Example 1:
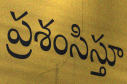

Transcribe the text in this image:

ప్రశంసిస్తూ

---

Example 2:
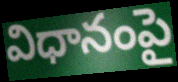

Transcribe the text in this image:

విధానంపై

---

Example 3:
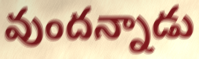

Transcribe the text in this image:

వుందన్నాడు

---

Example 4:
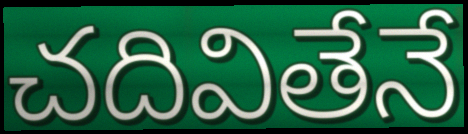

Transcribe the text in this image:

చదివితేనే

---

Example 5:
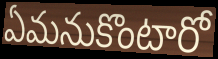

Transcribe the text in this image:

ఏమనుకొంటారో